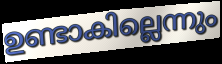
ഉണ്ടാകില്ലെന്നും